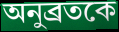
অনুব্রতকে